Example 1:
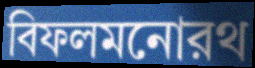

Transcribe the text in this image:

বিফলমনোরথ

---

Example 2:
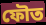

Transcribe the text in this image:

ফৌত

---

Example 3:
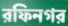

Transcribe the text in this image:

রফিনগর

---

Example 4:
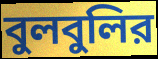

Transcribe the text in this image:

বুলবুলির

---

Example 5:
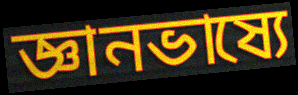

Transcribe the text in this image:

জ্ঞানভাষ্যে